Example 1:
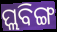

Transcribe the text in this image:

ପ୍ଲବିଙ୍ଗ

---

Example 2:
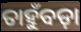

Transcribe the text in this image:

ତାହୁଁବଡ଼ା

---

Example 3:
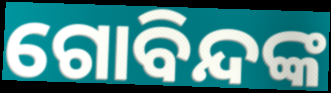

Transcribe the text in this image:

ଗୋବିନ୍ଦଙ୍କ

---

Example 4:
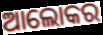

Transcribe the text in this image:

ଆଲୋକର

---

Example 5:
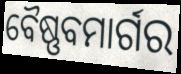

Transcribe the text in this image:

ବୈଷ୍ଣବମାର୍ଗର